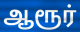
ஆரூர்